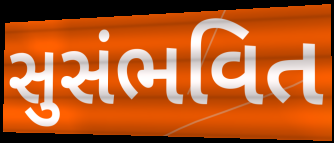
સુસંભવિત